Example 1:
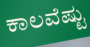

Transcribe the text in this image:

ಕಾಲವೆಷ್ಟು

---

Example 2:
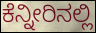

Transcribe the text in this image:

ಕೆನ್ನೀರಿನಲ್ಲಿ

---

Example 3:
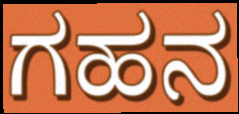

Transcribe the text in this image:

ಗಹನ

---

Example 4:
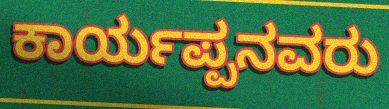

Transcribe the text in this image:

ಕಾರ್ಯಪ್ಪನವರು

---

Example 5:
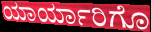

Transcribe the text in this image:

ಯಾರ್ಯಾರಿಗೊ